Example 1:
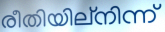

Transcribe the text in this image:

രീതിയില്നിന്ന്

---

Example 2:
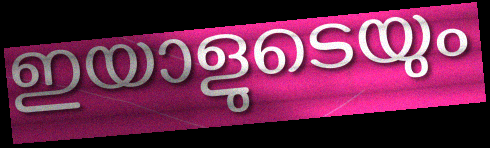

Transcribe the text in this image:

ഇയാളുടെയും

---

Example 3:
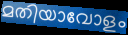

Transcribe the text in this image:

മതിയാവോളം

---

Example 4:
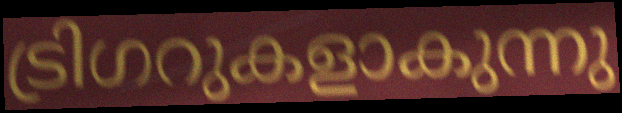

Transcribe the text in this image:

ട്രിഗറുകളാകുന്നു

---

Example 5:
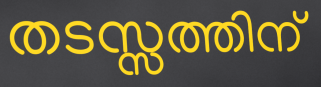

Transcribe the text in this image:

തടസ്സത്തിന്